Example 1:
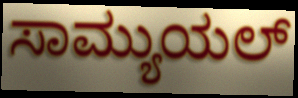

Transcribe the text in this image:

ಸಾಮ್ಯುಯಲ್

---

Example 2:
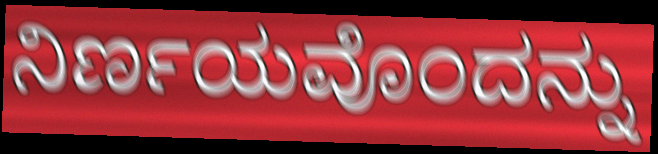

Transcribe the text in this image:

ನಿರ್ಣಯವೊಂದನ್ನು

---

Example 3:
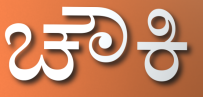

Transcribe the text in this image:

ಚೌಕಿ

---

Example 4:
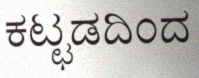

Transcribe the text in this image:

ಕಟ್ಟಡದಿಂದ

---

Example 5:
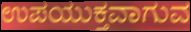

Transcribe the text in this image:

ಉಪಯುಕ್ತವಾಗುವ